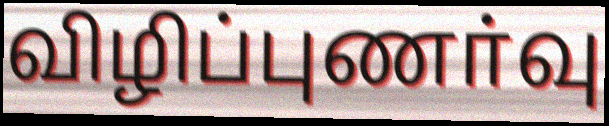
விழிப்புணர்வு